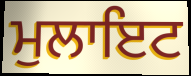
ਮੁਲਾਇਟ